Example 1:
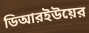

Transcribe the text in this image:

ডিআরইউয়ের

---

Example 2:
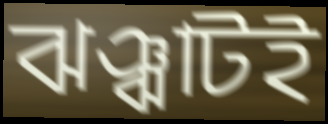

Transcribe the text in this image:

ঝঞ্ঝাটই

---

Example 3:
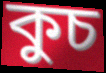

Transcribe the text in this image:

কুচ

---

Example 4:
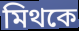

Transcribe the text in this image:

মিথকে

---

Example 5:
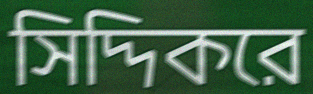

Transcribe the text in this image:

সিদ্দিকরে